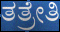
ತತ್ರೇತಿ